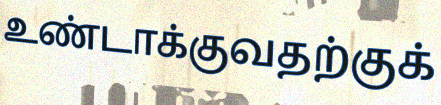
உண்டாக்குவதற்குக்